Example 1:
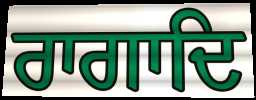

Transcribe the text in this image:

ਰਾਗਾਦਿ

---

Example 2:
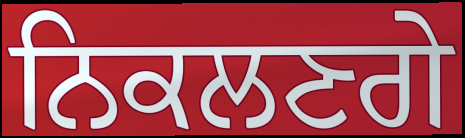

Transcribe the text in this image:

ਨਿਕਲਣਗੇ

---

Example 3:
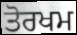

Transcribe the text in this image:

ਤੋਰਖਮ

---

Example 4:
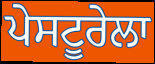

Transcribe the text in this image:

ਪੇਸਟੂਰੇਲਾ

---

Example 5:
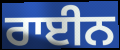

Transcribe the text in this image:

ਰਾਈਨ